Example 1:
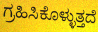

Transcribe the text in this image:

ಗ್ರಹಿಸಿಕೊಳ್ಳುತ್ತದೆ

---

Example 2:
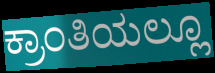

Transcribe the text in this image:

ಕ್ರಾಂತಿಯಲ್ಲೂ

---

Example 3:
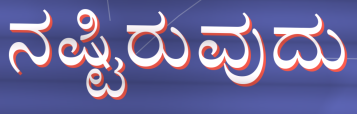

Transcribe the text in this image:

ನಷ್ಟಿರುವುದು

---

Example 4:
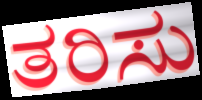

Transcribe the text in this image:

ತರಿಸು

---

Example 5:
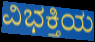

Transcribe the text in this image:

ವಿಭಕ್ತಿಯ